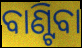
ବାଣ୍ଟିବା